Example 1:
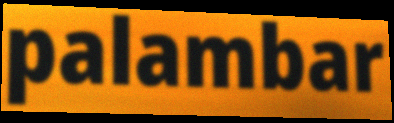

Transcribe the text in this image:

palambar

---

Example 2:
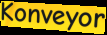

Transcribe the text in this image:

Konveyor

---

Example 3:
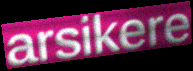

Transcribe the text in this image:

arsikere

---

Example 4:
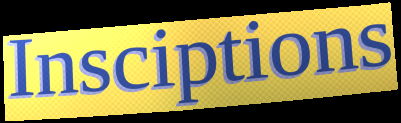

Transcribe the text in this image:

Insciptions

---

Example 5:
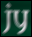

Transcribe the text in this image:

jy